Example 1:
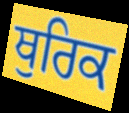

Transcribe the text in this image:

ਥੁਰਿਕ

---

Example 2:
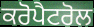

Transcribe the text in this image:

ਕਰੋਪੈਟਰੋਲ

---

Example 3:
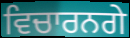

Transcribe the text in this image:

ਵਿਚਾਰਨਗੇ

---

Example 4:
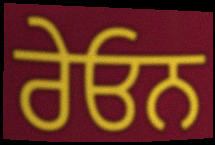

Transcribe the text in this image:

ਰੇਓਨ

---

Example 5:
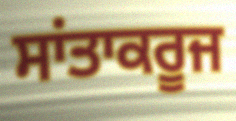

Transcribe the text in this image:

ਸਾਂਤਾਕਰੂਜ